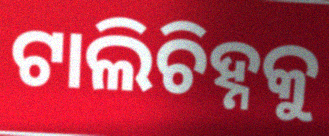
ଟାଲିଚିହ୍ନକୁ